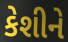
કેશીને